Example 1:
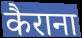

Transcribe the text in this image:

कैराना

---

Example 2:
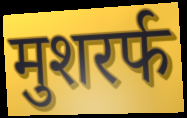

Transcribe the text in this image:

मुशरर्फ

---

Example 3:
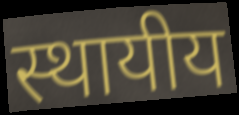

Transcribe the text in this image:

स्थायीय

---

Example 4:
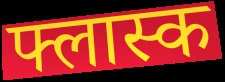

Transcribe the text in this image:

फ्लास्क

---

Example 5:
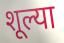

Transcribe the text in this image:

शूल्या